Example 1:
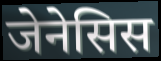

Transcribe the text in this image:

जेनेसिस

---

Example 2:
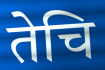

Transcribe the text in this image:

तेचि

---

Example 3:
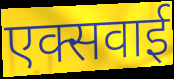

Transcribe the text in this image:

एक्सवाई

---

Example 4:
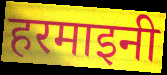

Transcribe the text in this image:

हरमाइनी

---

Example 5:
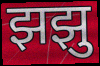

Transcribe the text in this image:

झझु